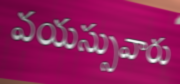
వయస్సువారు